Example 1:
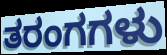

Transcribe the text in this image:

ತರಂಗಗಳು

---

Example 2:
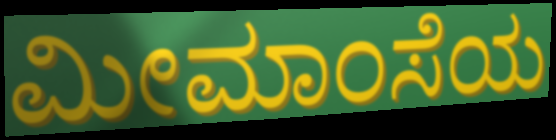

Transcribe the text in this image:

ಮೀಮಾಂಸೆಯ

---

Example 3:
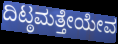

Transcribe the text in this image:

ದಿಟ್ಠಮತ್ತೇಯೇವ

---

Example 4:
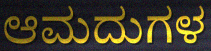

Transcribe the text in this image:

ಆಮದುಗಳ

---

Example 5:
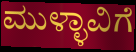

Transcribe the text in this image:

ಮುಳ್ಳಾವಿಗೆ